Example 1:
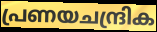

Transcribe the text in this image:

പ്രണയചന്ദ്രിക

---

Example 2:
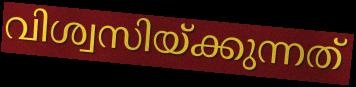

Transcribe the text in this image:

വിശ്വസിയ്ക്കുന്നത്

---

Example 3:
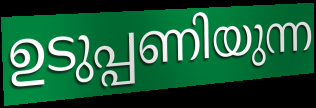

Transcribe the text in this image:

ഉടുപ്പണിയുന്ന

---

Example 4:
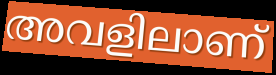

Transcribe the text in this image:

അവളിലാണ്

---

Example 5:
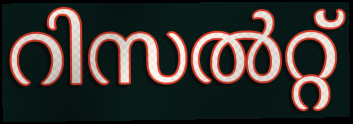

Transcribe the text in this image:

റിസൽറ്റ്